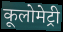
कूलोमेट्री